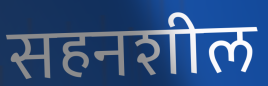
सहनशील